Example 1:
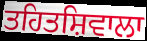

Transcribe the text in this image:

ਤਹਿਤਸ਼ਿਵਾਲਾ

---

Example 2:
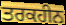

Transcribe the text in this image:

ਤਰਕਹੀਨ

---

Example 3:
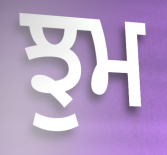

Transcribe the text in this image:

ਝੁਮ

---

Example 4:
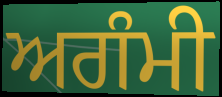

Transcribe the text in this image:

ਅਗੰਮੀ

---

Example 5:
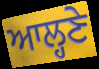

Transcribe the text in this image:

ਆਲ੍ਹਣੇ